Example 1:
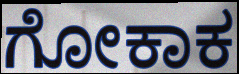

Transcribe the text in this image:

ಗೋಕಾಕ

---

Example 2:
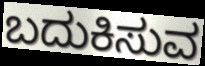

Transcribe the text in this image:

ಬದುಕಿಸುವ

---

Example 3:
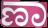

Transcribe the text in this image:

ಣಾ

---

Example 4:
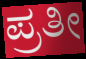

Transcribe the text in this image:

ಪ್ರತೀ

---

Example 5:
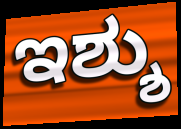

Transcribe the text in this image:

ಇಶ್ಶು